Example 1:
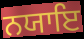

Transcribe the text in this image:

ਨਯਾਇ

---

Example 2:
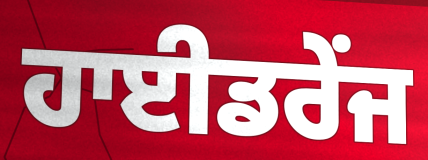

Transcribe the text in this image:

ਹਾਈਡਰੇਂਜ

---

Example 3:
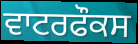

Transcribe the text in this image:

ਵਾਟਰਫੌਕਸ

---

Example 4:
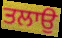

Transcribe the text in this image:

ਤਲਾਉ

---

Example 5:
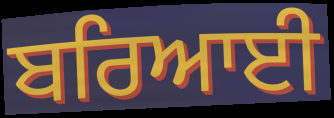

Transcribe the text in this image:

ਬਰਿਆਈ